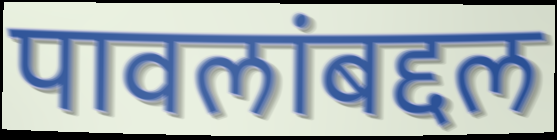
पावलांबद्दल